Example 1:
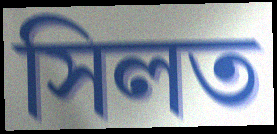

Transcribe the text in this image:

সিলত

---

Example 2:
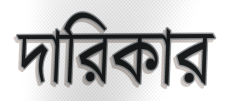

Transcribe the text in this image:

দারিকার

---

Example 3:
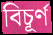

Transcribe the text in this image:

বিচূর্ণ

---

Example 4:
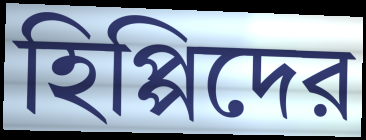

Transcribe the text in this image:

হিপ্পিদের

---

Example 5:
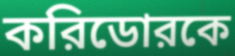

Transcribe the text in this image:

করিডোরকে